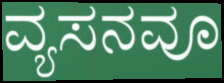
ವ್ಯಸನವೂ